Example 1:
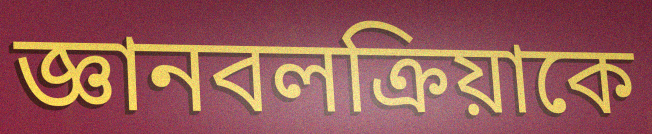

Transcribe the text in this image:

জ্ঞানবলক্রিয়াকে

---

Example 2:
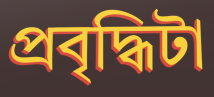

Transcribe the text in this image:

প্রবৃদ্ধিটা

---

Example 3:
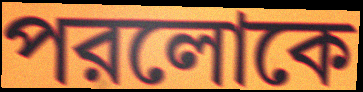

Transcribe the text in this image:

পরলোকে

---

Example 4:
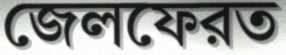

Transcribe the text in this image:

জেলফেরত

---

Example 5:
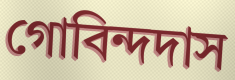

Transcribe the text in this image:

গোবিন্দদাস